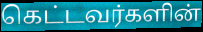
கெட்டவர்களின்